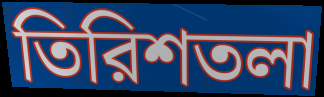
তিরিশতলা